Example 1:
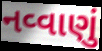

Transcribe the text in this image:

નવ્વાણું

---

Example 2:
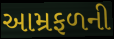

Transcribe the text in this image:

આમ્રફળની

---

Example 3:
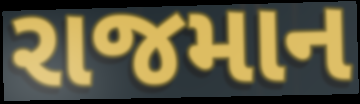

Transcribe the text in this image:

રાજમાન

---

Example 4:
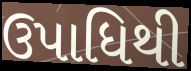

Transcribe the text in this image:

ઉપાધિથી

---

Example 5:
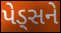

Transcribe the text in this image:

પેડ્સને